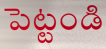
పెట్టండి